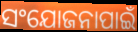
ସଂଯୋଜନାପାଇଁ